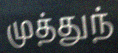
முத்துந்